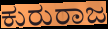
ಕುರುರಾಜ